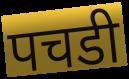
पचडी